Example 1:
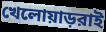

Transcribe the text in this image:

খেলোয়াড়রাই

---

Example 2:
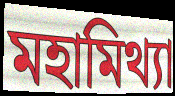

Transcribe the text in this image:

মহামিথ্যা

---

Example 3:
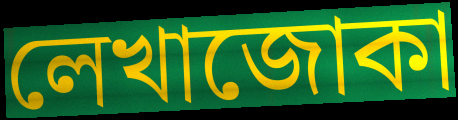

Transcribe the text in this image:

লেখাজোকা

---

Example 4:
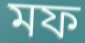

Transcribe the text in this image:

মফ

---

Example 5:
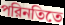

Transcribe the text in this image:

পরিনতিতে